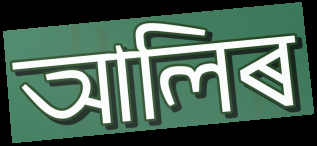
আলিৰ